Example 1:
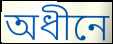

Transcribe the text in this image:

অধীনে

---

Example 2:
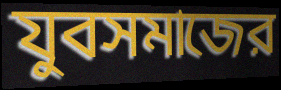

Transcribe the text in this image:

যুবসমাজের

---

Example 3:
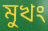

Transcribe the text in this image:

মুখং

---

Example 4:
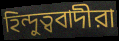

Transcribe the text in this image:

হিন্দুত্ববাদীরা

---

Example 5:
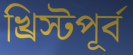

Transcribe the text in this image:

খ্রিস্টপূর্ব